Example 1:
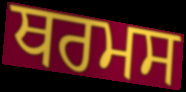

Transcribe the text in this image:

ਥਰਮਸ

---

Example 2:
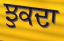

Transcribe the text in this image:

ਝੁਕਦਾ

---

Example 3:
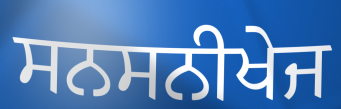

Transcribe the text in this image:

ਸਨਸਨੀਖੇਜ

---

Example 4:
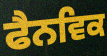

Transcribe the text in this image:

ਫੈਨਵਿਕ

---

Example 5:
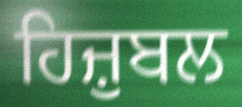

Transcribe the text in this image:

ਹਿਜ਼ੁਬਲ